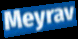
Meyrav